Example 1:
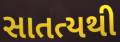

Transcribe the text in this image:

સાતત્યથી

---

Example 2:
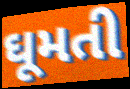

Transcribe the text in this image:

ઘૂમતી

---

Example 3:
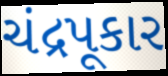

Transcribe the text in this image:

ચંદ્રપૂકાર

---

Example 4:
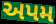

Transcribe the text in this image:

અપમ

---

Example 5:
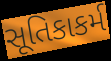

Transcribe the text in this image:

સૂતિકાકર્મ